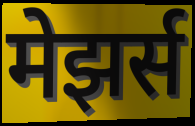
मेझर्स